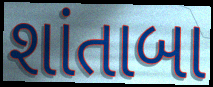
શાંતાબા